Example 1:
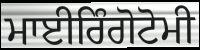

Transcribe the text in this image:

ਮਾਈਰਿੰਗੋਟੋਮੀ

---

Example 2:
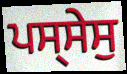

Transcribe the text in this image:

ਪਸ੍ਸੇਸੁ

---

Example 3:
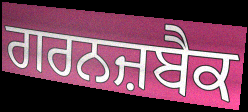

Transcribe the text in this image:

ਗਰਨਜ਼ਬੈਕ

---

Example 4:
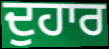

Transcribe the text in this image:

ਦੁਹਾਰ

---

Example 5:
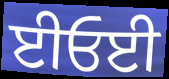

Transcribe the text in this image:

ਈਓਈ